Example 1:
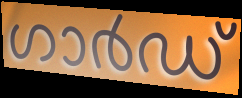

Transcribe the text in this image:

ഗാർഡ്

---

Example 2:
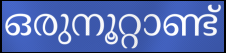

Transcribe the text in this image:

ഒരുനൂറ്റാണ്ട്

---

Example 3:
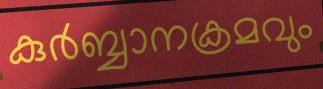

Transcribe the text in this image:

കുർബ്ബാനക്രമവും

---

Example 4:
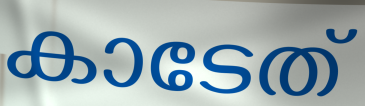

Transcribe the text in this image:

കാടേത്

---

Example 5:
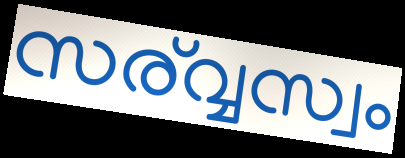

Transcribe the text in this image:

സര്വ്വസ്വം